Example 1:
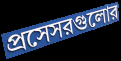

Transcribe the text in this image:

প্রসেসরগুলোর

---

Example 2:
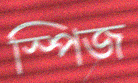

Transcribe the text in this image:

স্পিজ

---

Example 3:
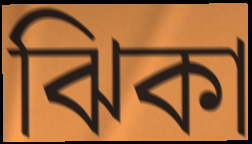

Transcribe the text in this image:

ঝিকা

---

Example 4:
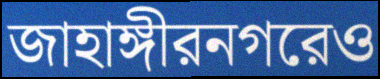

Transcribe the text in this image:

জাহাঙ্গীরনগরেও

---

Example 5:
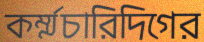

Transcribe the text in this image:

কর্ম্মচারিদিগের